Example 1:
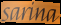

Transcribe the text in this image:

sarina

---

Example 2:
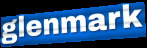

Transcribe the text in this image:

glenmark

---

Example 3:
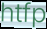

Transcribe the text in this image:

htfp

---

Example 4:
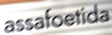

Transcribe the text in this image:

assafoetida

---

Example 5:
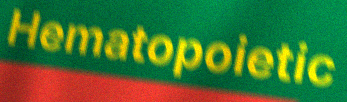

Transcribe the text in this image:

Hematopoietic